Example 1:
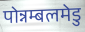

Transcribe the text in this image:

पोन्नम्बलमेडु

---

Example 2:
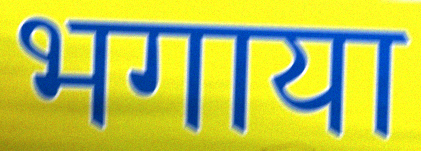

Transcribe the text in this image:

भगाया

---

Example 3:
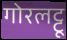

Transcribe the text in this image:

गोरलट्टू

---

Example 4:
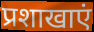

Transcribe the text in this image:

प्रशाखाएं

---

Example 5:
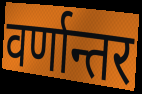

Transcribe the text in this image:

वर्णान्तर